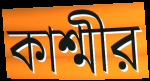
কাশ্মীর